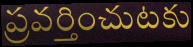
ప్రవర్తించుటకు